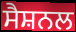
ਸੈਸ਼ਨਲ